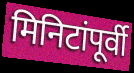
मिनिटांपूर्वी